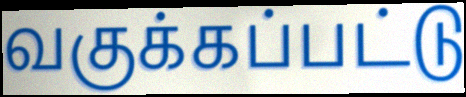
வகுக்கப்பட்டு